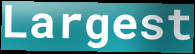
Largest